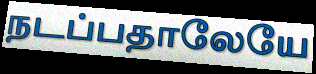
நடப்பதாலேயே